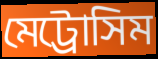
মেট্রোসিম